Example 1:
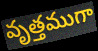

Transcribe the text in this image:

వృత్తముగా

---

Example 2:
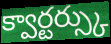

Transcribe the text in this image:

క్వార్టర్స్కు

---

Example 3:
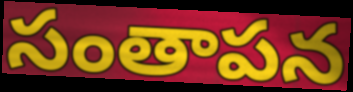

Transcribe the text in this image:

సంతాపన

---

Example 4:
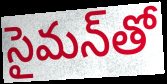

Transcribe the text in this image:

సైమన్‌తో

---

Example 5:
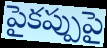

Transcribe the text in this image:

పైకప్పుపై